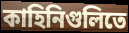
কাহিনিগুলিতে